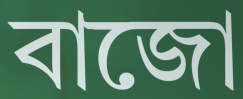
বাজো